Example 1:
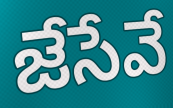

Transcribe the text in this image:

జేసేవే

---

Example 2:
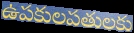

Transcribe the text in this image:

ఉపకులపతులకు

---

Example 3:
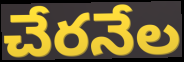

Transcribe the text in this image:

చేరనేల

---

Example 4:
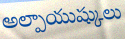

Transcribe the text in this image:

అల్పాయుష్కులు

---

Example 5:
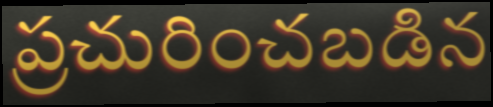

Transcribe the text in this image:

ప్రచురించబడిన